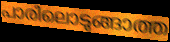
പാരിലൊടുങ്ങാത്ത